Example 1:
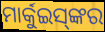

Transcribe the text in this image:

ମାର୍କୁଇସ୍‍ଙ୍କର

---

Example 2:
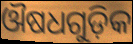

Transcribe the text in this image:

ଔଷଧଗୁଡ଼ିକ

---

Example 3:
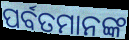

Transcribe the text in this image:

ପର୍ବତମାନଙ୍କ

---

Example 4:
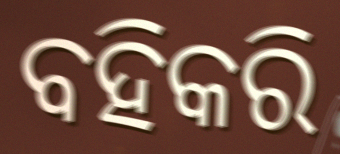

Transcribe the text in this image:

ବହିକରି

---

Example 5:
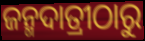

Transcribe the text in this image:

ଜନ୍ମଦାତ୍ରୀଠାରୁ